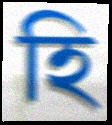
হি